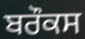
ਬਰੌਕਸ